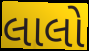
લાલો